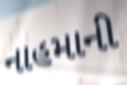
નાહમાની